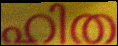
ഹിത